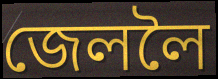
জেললৈ